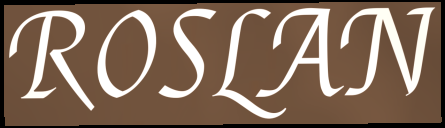
ROSLAN